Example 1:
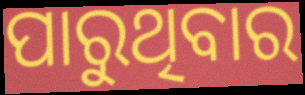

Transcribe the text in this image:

ପାରୁଥିବାର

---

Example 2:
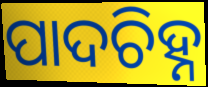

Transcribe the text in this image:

ପାଦଚିହ୍ନ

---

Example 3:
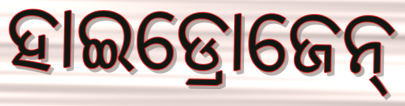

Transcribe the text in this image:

ହାଇଡ୍ରୋଜେନ୍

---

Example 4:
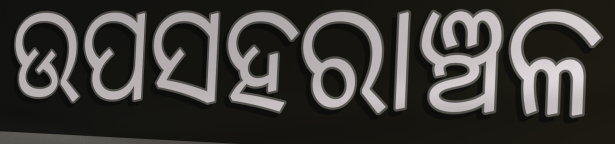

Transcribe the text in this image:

ଉପସହରାଞ୍ଚଳ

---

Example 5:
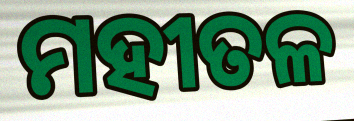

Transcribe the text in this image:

ମହୀତଳ